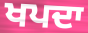
ਖਪਦਾ